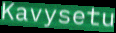
Kavysetu